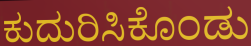
ಕುದುರಿಸಿಕೊಂಡು